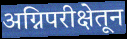
अग्निपरीक्षेतून